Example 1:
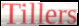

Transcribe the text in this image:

Tillers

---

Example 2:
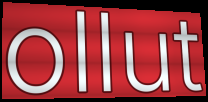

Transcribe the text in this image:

ollut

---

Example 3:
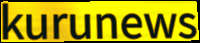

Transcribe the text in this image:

kurunews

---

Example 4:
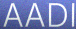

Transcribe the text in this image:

AADI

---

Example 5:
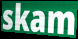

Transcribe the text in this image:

skam